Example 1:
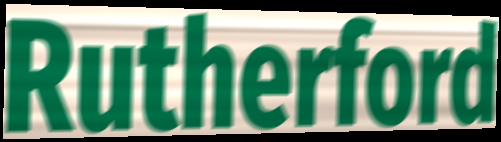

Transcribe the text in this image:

Rutherford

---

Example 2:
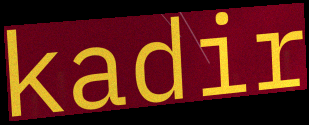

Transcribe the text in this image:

kadir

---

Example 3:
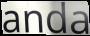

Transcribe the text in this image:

anda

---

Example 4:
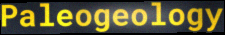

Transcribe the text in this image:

Paleogeology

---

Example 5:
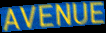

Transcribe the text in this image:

AVENUE